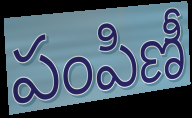
పంపిణీ